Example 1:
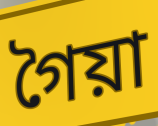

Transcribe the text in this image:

গৈয়া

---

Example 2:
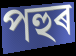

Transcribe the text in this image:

পহুৰ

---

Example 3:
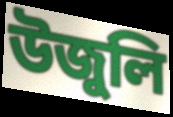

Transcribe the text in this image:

উজুলি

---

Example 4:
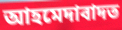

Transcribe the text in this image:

আহমেদাবাদত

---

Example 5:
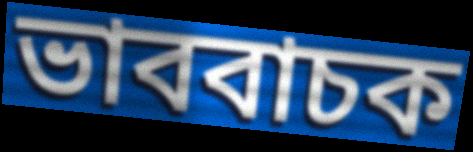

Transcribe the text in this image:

ভাববাচক